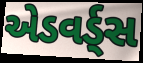
એડવર્ડ્સ